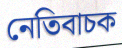
নেতিবাচক